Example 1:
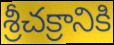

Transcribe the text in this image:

శ్రీచక్రానికి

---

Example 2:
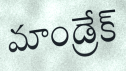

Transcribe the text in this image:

మాండ్రేక్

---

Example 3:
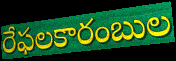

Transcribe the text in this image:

రేఫలకారంబుల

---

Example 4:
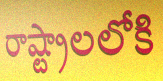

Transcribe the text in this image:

రాష్ట్రాలలోకి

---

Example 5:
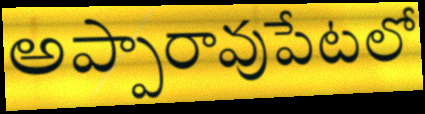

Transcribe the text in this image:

అప్పారావుపేటలో